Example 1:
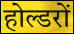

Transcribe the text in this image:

होल्‍डरों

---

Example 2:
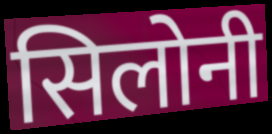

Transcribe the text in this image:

सिलोनी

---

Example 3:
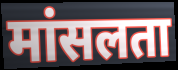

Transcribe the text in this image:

मांसलता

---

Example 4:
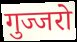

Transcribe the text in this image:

गुज्जरो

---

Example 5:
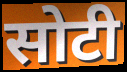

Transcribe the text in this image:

सोटी